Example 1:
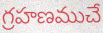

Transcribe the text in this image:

గ్రహణముచే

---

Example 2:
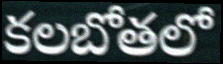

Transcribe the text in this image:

కలబోతలో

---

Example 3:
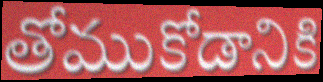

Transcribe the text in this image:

తోముకోడానికి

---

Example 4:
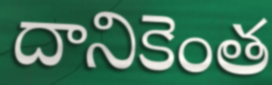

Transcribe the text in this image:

దానికెంత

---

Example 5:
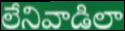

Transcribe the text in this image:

లేనివాడిలా